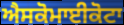
ਐਸਕੋਮਾਈਕੋਟਾ